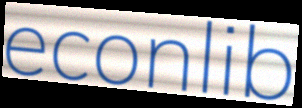
econlib